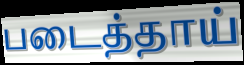
படைத்தாய்